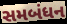
સમબંધન